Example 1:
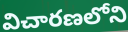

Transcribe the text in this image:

విచారణలోని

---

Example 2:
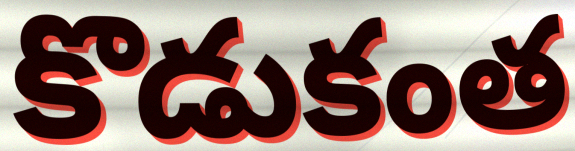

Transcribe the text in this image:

కొడుకంత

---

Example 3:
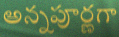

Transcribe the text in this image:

అన్నపూర్ణగా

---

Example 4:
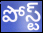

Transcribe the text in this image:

పోస్ట్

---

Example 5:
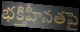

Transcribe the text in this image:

భక్తిహీనతపై